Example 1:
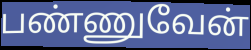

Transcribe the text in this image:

பண்ணுவேன்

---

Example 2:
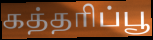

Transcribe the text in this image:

கத்தரிப்பூ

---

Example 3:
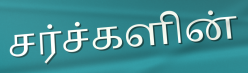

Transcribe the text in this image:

சர்ச்களின்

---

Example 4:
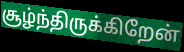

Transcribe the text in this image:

சூழ்ந்திருக்கிறேன்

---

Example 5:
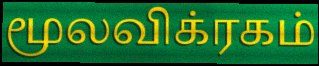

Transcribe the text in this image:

மூலவிக்ரகம்